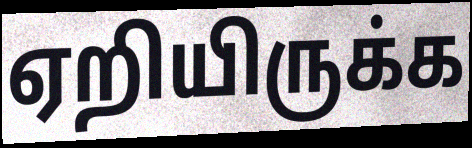
ஏறியிருக்க